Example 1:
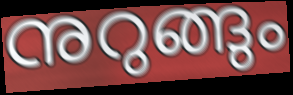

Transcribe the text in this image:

നുറുങ്ങും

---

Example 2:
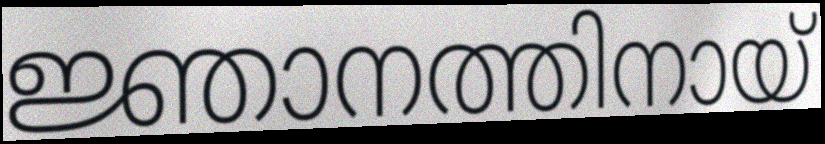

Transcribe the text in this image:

ജ്ഞാനത്തിനായ്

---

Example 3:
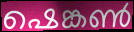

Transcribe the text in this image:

ഷെങ്കൺ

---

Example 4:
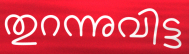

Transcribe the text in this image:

തുറന്നുവിട്ട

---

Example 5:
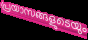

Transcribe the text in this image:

പ്രയാസങ്ങളുടെയും